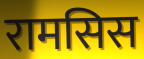
रामसिस